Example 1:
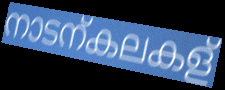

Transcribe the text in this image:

നാടന്കലകള്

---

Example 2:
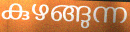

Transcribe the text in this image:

കുഴങ്ങുന്ന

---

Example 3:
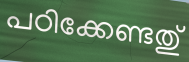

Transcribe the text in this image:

പഠിക്കേണ്ടതു്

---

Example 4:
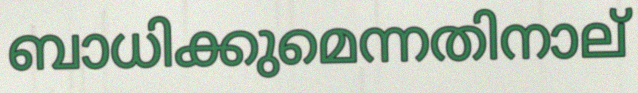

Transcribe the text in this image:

ബാധിക്കുമെന്നതിനാല്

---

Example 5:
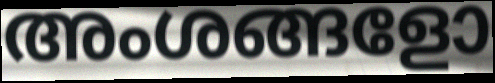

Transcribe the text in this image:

അംശങ്ങളോ